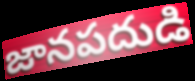
జానపదుడి